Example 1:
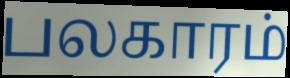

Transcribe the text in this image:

பலகாரம்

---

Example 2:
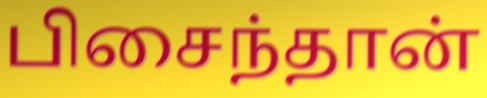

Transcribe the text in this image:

பிசைந்தான்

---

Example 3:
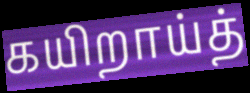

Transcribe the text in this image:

கயிறாய்த்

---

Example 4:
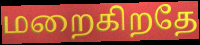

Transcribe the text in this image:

மறைகிறதே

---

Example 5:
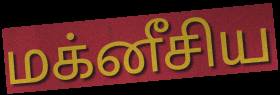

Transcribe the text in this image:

மக்னீசிய